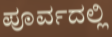
ಪೂರ್ವದಲ್ಲಿ